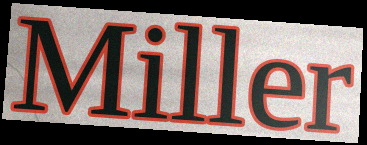
Miller